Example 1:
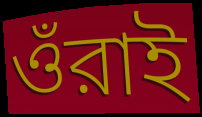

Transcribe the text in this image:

ওঁরাই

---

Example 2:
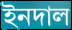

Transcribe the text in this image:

ইনদাল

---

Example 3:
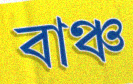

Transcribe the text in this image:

বাঞ্চ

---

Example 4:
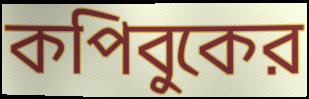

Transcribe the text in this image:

কপিবুকের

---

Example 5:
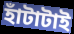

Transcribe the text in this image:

হাঁটাটাই